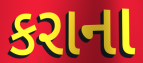
કરાના